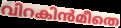
വിറകിൻമീതെ